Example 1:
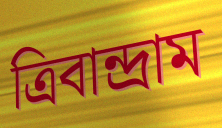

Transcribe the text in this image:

ত্রিবান্দ্রাম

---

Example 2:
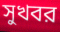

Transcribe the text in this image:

সুখবর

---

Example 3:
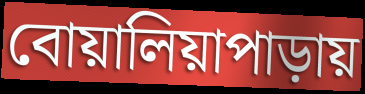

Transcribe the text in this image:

বোয়ালিয়াপাড়ায়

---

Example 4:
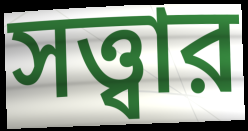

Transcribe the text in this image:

সত্ত্বার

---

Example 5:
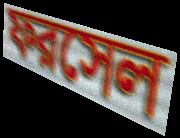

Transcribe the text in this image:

ফরসেল